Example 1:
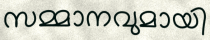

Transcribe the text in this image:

സമ്മാനവുമായി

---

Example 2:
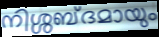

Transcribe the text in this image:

നിശ്ശബ്ദമായും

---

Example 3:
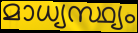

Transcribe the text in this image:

മാധ്യസ്ഥ്യം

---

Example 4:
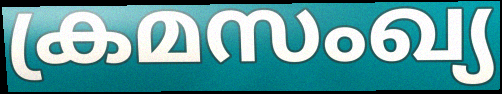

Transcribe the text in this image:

ക്രമസംഖ്യ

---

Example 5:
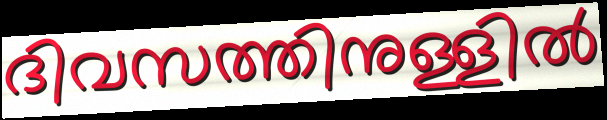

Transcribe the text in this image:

ദിവസത്തിനുള്ളിൽ